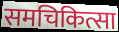
समचिकित्सा